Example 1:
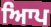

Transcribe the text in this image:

ਆਿਪ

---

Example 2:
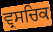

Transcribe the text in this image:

ਵ੍ਰਸਚਿਕ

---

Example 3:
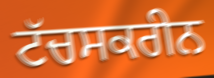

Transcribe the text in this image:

ਟੱਚਸਕਰੀਨ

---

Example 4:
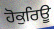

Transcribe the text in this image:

ਹੋਕੁਰਿਊ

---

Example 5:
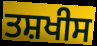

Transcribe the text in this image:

ਤਸ਼ਖੀਸ